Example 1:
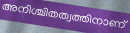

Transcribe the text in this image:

അനിശ്ചിതത്വത്തിനാണ്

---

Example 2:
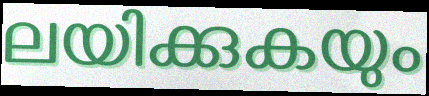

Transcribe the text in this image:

ലയിക്കുകയും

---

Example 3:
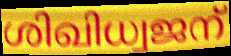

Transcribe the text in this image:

ശിഖിധ്വജന്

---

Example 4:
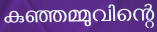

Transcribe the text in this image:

കുഞ്ഞമ്മുവിന്റെ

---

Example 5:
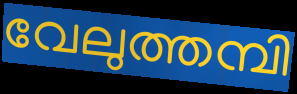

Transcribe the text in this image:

വേലുത്തമ്പി